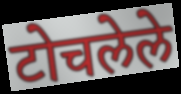
टोचलेले